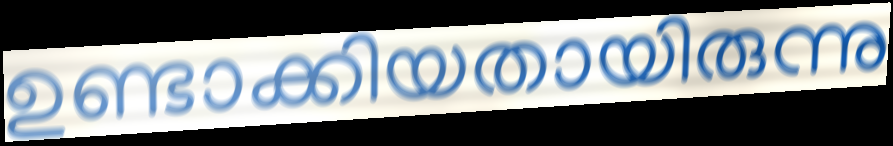
ഉണ്ടാക്കിയതായിരുന്നു